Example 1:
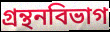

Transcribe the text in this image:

গ্রন্থনবিভাগ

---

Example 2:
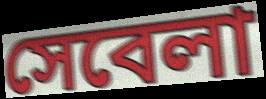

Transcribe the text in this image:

সেবেলা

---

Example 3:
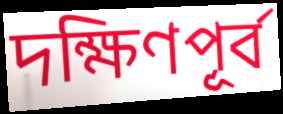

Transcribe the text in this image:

দক্ষিণপূর্ব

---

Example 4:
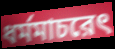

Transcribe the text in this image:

ধর্মমাচরেৎ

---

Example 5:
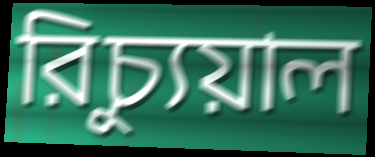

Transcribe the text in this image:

রিচ্যুয়াল